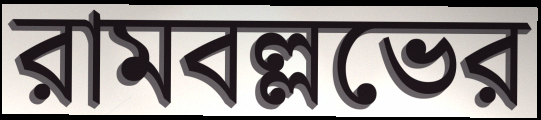
রামবল্লভের